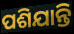
ପଶିଯାନ୍ତି